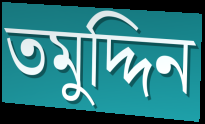
তমুদ্দিন